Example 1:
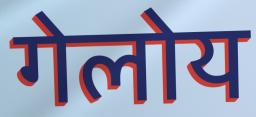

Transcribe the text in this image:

गेलोय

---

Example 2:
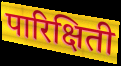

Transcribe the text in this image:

पारिक्षिती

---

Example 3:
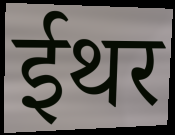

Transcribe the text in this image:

ईथर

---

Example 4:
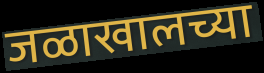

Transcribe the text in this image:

जळाखालच्या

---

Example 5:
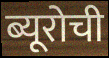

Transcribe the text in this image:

ब्यूरोची